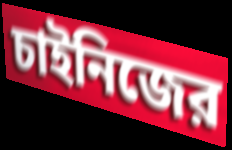
চাইনিজের